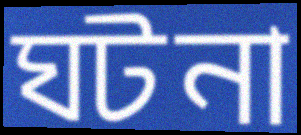
ঘটনা